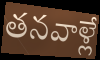
తనవాళ్లే